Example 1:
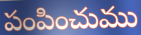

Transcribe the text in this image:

పంపించుము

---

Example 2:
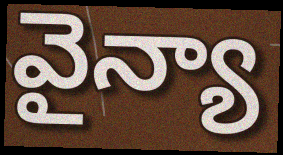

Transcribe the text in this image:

వైన్యా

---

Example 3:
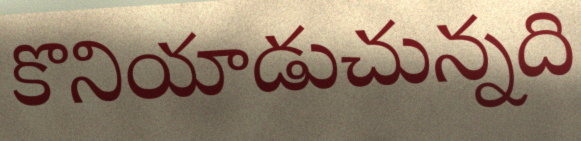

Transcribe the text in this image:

కొనియాడుచున్నది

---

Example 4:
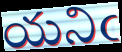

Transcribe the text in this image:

యనిఁ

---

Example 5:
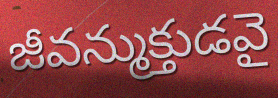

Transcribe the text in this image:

జీవన్ముక్తుడవై